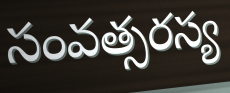
సంవత్సరస్య